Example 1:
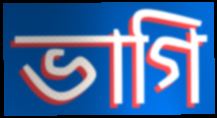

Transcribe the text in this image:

ভাগি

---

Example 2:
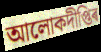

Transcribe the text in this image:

আলোকদীপ্তিৰ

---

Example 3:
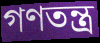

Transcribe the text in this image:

গণতন্ত্ৰ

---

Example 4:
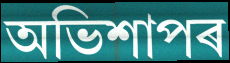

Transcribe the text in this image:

অভিশাপৰ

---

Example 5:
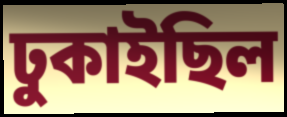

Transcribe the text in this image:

ঢুকাইছিল